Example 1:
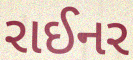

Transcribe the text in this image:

રાઈનર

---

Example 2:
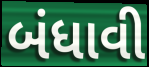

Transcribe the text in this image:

બંધાવી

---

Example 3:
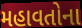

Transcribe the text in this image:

મહાવતોના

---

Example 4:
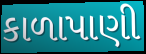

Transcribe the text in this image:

કાળાપાણી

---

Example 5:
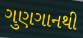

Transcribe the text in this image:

ગુણગાનથી